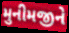
મુનીમજીને